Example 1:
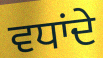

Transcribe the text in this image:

ਵਧਾਂਦੇ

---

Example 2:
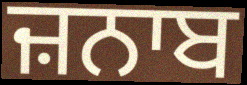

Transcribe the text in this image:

ਜ਼ਨਾਬ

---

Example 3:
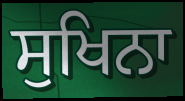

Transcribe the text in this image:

ਸੁਖਿਨਾ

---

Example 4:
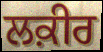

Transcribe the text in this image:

ਲਕ਼ੀਰ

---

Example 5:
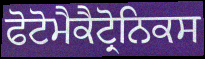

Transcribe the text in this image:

ਫੋਟੋਮੈਕੈਟ੍ਰੋਨਿਕਸ